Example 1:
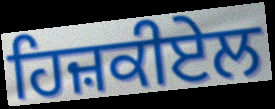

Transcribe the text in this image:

ਹਿਜ਼ਕੀਏਲ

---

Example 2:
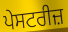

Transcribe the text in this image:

ਪੇਸਟਰੀਜ਼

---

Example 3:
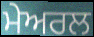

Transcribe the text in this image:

ਮੇਅਰਲ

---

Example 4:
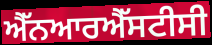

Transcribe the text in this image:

ਐੱਨਆਰਐੱਸਟੀਸੀ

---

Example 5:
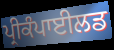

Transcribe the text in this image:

ਪ੍ਰੀਕੰਪਾਈਲਡ